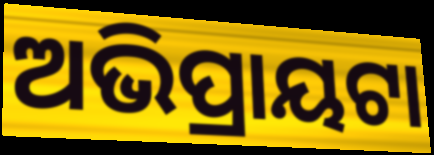
ଅଭିପ୍ରାୟଟା